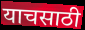
याचसाठी